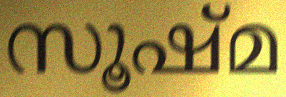
സൂഷ്മ